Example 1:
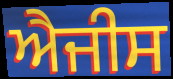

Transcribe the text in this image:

ਐਜੀਸ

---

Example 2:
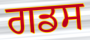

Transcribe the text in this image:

ਗਡਸ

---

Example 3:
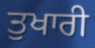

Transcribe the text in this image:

ਤੁਖਾਰੀ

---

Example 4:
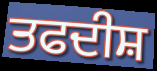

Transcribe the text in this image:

ਤਫਦੀਸ਼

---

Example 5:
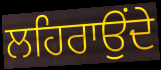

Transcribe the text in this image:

ਲਹਿਰਾਉਂਦੇ